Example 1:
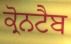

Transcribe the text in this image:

ਕ੍ਰੋਨਟੈਬ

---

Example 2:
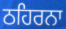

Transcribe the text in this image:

ਠਹਿਰਨਾ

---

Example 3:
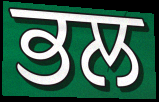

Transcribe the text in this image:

ਭਲ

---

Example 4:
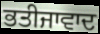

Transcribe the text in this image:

ਭਤੀਜਾਵਾਦ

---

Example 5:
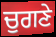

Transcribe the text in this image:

ਚੁਗਣੇ